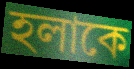
হলাকে